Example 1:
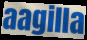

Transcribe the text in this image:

aagilla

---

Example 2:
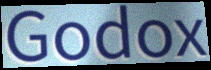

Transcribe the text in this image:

Godox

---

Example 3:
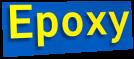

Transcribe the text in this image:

Epoxy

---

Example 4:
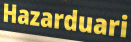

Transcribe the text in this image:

Hazarduari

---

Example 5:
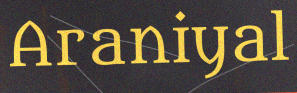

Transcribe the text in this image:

Araniyal